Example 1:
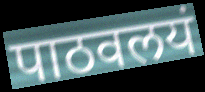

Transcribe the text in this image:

पाठवलयं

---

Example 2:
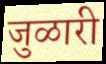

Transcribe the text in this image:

जुळारी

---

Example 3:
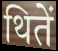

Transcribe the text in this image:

थितें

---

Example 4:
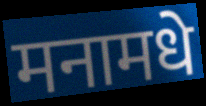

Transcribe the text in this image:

मनामधे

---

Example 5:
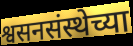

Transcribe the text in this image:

श्वसनसंस्थेच्या